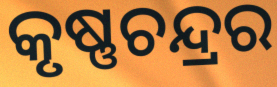
କୃଷ୍ଣଚନ୍ଦ୍ରର